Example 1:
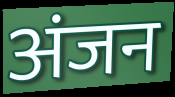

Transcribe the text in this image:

अंजन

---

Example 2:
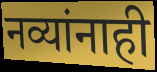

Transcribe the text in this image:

नव्यांनाही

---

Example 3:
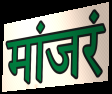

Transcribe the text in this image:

मांजरं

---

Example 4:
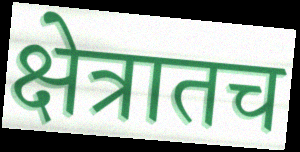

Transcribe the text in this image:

क्षेत्रातच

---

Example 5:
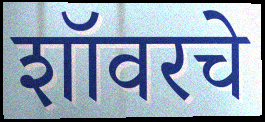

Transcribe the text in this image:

शॉवरचे